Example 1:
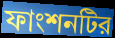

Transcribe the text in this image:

ফাংশনটির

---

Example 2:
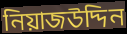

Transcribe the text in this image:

নিয়াজউদ্দিন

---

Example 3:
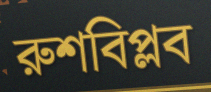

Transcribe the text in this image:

রুশবিপ্লব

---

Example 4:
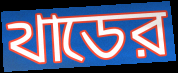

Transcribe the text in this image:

থাডের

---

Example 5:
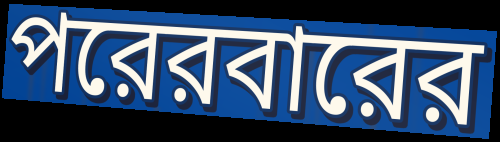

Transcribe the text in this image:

পরেরবারের